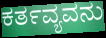
ಕರ್ತವ್ಯವನು